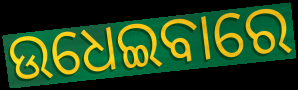
ଉଧେଇବାରେ